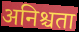
अनिश्चता